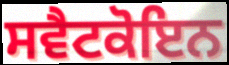
ਸਵੈਟਕੋਇਨ